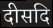
दीसदि